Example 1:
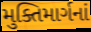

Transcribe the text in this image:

મુક્તિમાર્ગનાં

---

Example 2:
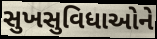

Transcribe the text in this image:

સુખસુવિધાઓને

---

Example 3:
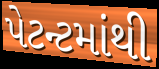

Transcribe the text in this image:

પેટન્ટમાંથી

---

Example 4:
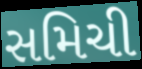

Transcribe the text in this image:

સમિચી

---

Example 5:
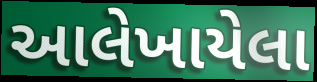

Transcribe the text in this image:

આલેખાયેલા